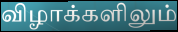
விழாக்களிலும்